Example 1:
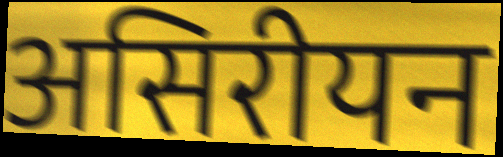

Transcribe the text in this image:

असिरीयन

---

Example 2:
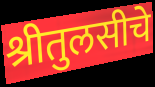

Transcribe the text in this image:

श्रीतुलसीचे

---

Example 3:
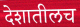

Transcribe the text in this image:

देशातीलच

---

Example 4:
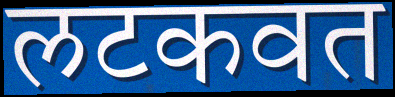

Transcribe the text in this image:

लटकवत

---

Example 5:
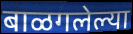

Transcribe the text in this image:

बाळगलेल्या